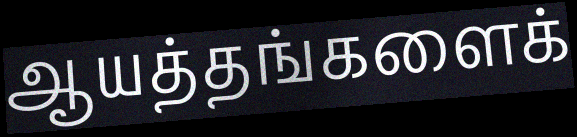
ஆயத்தங்களைக்